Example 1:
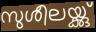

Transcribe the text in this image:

സുശീലയ്ക്കു്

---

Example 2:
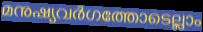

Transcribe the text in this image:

മനുഷ്യവർഗത്തോടെല്ലാം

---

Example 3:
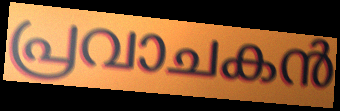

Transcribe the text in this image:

പ്രവാചകൻ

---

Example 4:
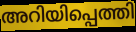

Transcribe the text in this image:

അറിയിപ്പെത്തി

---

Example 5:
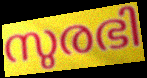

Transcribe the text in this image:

സുരഭി